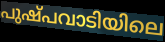
പുഷ്പവാടിയിലെ